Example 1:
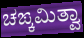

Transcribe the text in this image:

ಚಙ್ಕಮಿತ್ವಾ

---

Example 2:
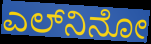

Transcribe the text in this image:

ಎಲ್‍ನಿನೋ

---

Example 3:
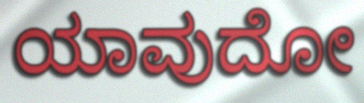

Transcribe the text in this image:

ಯಾವುದೋ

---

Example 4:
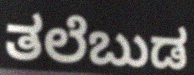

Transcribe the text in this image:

ತಲೆಬುಡ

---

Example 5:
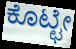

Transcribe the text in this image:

ಕೊಟ್ಟೇ